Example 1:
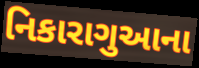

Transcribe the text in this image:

નિકારાગુઆના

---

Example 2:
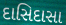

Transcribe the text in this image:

દાસિદાસા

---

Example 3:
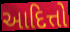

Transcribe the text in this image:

આદિત્તો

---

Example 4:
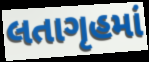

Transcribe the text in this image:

લતાગૃહમાં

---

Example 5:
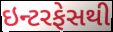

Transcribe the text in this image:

ઇન્ટરફેસથી